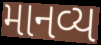
માનવ્ય